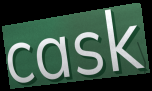
cask